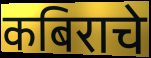
कबिराचे